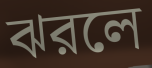
ঝরলে